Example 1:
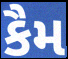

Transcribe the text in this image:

કૈમ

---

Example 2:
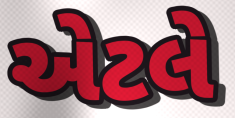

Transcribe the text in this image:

એટલે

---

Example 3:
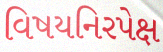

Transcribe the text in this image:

વિષયનિરપેક્ષ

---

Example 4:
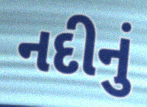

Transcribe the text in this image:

નદીનું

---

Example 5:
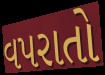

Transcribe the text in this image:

વપરાતો